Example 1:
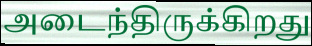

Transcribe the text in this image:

அடைந்திருக்கிறது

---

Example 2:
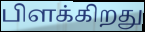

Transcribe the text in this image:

பிளக்கிறது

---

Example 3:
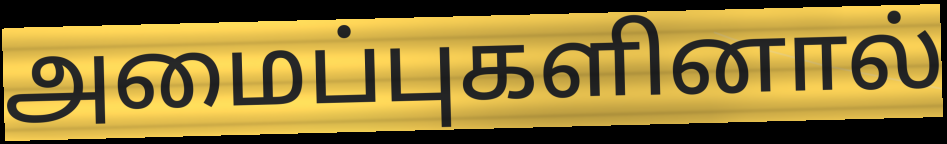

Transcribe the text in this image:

அமைப்புகளினால்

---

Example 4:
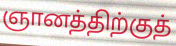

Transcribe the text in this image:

ஞானத்திற்குத்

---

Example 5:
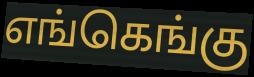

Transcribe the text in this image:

எங்கெங்கு